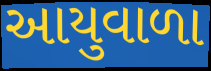
આયુવાળા